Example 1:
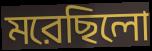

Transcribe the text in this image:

মরেছিলো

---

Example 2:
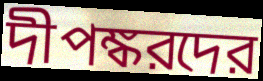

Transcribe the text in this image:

দীপঙ্করদের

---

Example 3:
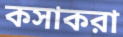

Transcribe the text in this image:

কসাকরা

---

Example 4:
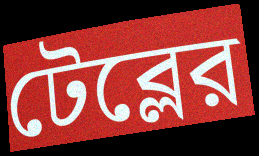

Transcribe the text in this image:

টেব্লের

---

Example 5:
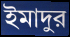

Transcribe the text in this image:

ইমাদুর